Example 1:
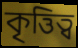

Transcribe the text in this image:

কৃত্তিত্ব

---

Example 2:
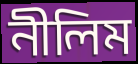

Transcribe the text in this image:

নীলিম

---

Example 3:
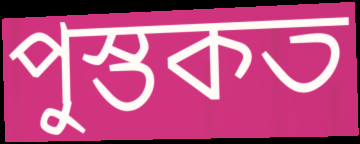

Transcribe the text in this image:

পুস্তকত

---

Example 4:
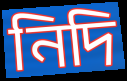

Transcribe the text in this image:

নিদি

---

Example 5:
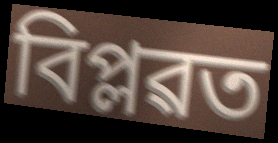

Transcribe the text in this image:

বিপ্লৱত